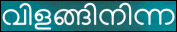
വിളങ്ങിനിന്ന